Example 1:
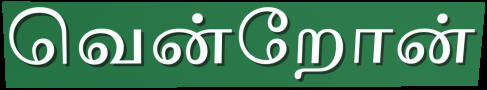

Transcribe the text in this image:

வென்றோன்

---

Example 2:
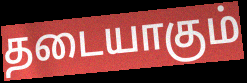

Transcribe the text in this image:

தடையாகும்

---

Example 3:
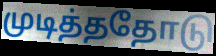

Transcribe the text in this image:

முடித்ததோடு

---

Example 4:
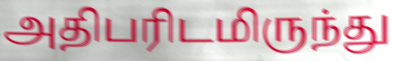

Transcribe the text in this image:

அதிபரிடமிருந்து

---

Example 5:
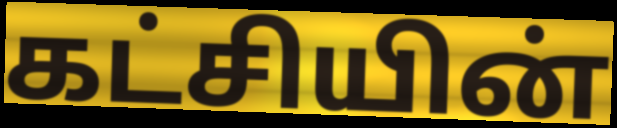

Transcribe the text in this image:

கட்சியின்